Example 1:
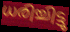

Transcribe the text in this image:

ധരിച്ചിട്ടു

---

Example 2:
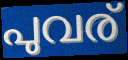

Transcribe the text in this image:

പുവര്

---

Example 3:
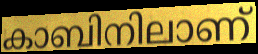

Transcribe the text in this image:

കാബിനിലാണ്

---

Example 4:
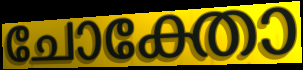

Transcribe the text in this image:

ചോക്തോ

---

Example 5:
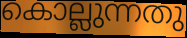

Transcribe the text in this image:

കൊല്ലുന്നതു